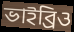
ভাইব্রিও